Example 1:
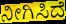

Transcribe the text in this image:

ನೀಗಿಸಿದೆ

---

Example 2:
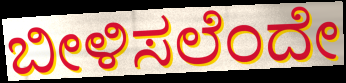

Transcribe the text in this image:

ಬೀಳಿಸಲೆಂದೇ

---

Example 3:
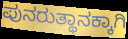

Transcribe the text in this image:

ಪುನರುತ್ಥಾನಕ್ಕಾಗಿ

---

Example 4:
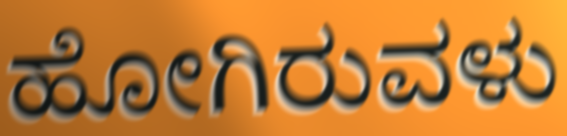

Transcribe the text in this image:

ಹೋಗಿರುವಳು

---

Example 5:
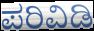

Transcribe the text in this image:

ಪರಿವಿಡಿ